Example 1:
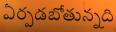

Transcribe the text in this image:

ఏర్పడబోతున్నది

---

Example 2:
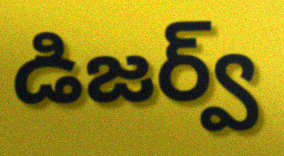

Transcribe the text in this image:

డిజర్వ్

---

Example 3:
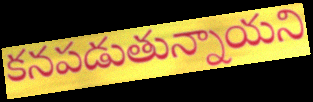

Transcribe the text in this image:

కనపడుతున్నాయని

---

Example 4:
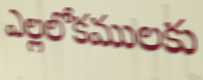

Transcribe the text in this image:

ఎల్లలోకములకు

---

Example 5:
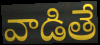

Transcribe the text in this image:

వాడితే